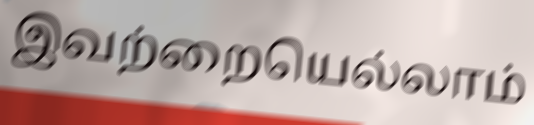
இவற்றையெல்லாம்